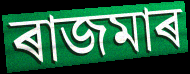
ৰাজমাৰ